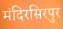
मंदिरसिरपुर